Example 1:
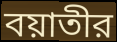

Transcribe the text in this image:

বয়াতীর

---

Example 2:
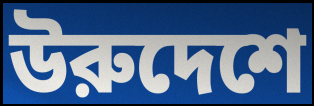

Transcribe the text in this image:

উরুদেশে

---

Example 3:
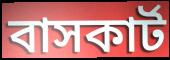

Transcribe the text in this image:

বাসকার্ট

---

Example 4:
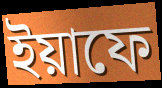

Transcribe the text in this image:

ইয়াফে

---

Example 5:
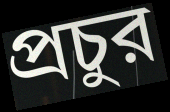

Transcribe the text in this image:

প্রচুর